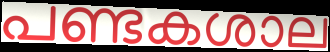
പണ്ടകശാല